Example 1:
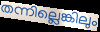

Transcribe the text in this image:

തന്നില്ലെങ്കിലും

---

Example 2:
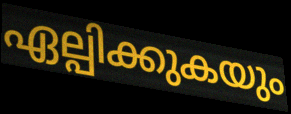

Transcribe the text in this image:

ഏല്പിക്കുകയും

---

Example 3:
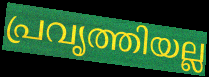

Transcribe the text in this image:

പ്രവൃത്തിയല്ല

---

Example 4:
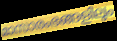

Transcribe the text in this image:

മാസാരംഭങ്ങളിലും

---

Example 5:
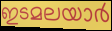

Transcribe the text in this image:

ഇടമലയാർ